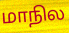
மாநில